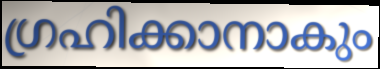
ഗ്രഹിക്കാനാകും